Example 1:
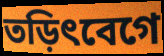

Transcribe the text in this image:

তড়িৎবেগে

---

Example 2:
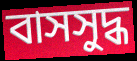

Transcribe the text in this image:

বাসসুদ্ধ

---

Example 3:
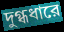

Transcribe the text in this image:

দুগ্ধধারে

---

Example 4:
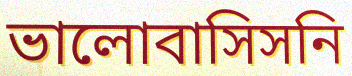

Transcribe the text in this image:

ভালোবাসিসনি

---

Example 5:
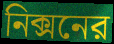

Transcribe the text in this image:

নিক্সনের